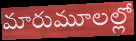
మారుమూలల్లో